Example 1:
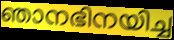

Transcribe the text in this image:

ഞാനഭിനയിച്ച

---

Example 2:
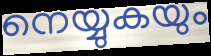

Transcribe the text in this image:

നെയ്യുകയും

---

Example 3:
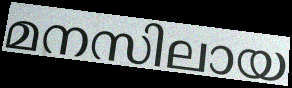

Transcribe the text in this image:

മനസിലായ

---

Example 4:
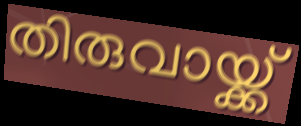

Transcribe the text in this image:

തിരുവായ്ക്ക്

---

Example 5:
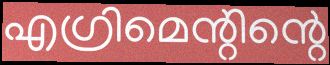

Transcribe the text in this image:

എഗ്രിമെന്റിന്റെ